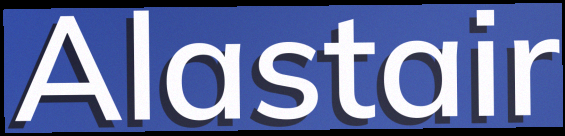
Alastair